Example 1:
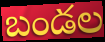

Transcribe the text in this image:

బండల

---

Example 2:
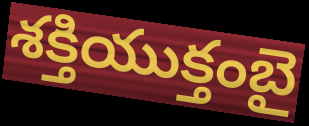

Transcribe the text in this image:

శక్తియుక్తంబై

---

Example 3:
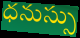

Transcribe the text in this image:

ధనుస్సు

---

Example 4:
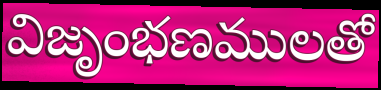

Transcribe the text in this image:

విజృంభణములతో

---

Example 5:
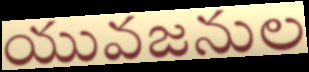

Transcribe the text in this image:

యువజనుల